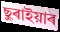
ছুৰাইয়াৰ